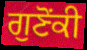
ਗੁਣੋਂਕੀ